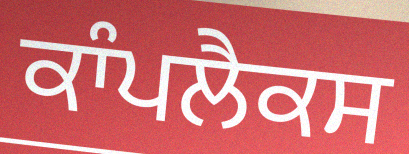
ਕਾੰਪਲੈਕਸ